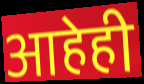
आहेही